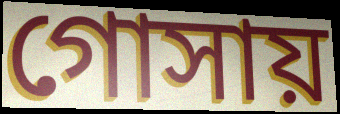
গোসায়